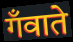
गँवाते